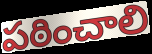
పఠించాలి